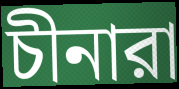
চীনারা